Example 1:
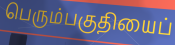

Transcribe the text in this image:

பெரும்பகுதியைப்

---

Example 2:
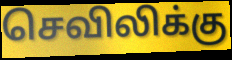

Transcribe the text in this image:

செவிலிக்கு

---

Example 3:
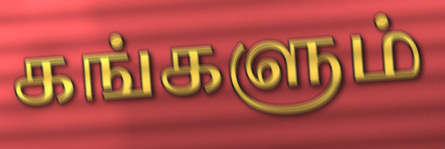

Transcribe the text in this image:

கங்களும்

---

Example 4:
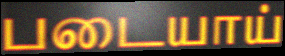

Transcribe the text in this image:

படையாய்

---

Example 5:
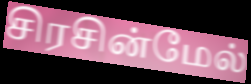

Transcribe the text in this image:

சிரசின்மேல்